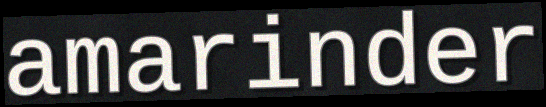
amarinder